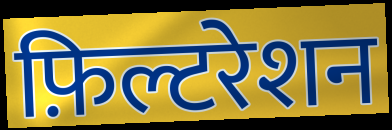
फ़िल्टरेशन